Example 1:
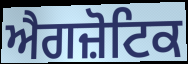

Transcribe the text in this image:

ਐਗਜ਼ੋਟਿਕ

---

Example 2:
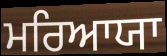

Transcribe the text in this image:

ਮਰਿਆਯਾ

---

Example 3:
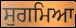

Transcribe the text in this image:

ਸੁਗਮਿਆ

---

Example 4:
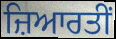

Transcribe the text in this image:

ਜ਼ਿਆਰਤੀਂ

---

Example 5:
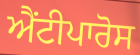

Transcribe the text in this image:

ਐਂਟੀਪਾਰੋਸ